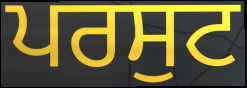
ਪਰਸੁਟ